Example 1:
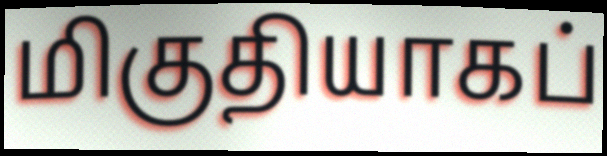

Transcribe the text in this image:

மிகுதியாகப்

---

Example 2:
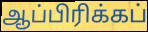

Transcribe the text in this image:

ஆப்பிரிக்கப்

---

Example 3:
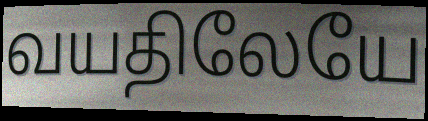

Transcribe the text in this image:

வயதிலேயே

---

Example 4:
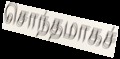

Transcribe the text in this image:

சொந்தமாகச்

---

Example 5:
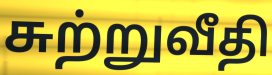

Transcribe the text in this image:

சுற்றுவீதி